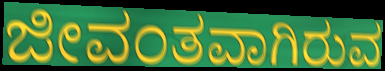
ಜೀವಂತವಾಗಿರುವ